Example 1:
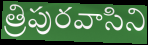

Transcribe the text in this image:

త్రిపురవాసిని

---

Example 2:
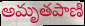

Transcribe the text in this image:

అమృతపాణి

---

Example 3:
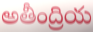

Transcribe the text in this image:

అతీంద్రియ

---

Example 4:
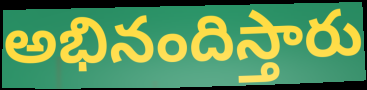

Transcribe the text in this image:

అభినందిస్తారు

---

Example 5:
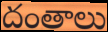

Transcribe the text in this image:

దంతాలు